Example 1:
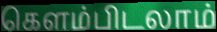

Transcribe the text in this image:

கெளம்பிடலாம்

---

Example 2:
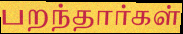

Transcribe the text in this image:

பறந்தார்கள்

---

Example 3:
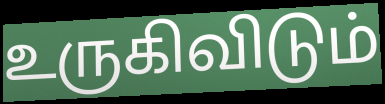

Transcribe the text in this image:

உருகிவிடும்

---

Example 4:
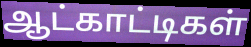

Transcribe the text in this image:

ஆட்காட்டிகள்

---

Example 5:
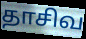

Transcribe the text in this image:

தாசிவ